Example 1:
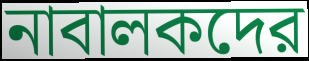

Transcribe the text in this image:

নাবালকদের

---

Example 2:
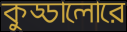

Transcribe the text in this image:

কুড্ডালোরে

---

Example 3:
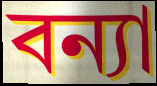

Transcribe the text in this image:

বন্যা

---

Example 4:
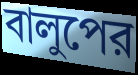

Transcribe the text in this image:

বালুপের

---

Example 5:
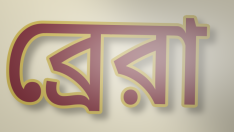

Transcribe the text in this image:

ব্রেরা